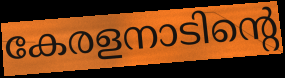
കേരളനാടിന്റെ